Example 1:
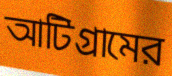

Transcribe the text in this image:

আটিগ্রামের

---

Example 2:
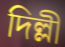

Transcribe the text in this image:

দিল্লী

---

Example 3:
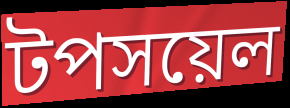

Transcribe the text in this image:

টপসয়েল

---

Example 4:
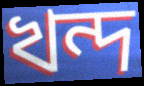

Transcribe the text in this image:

খন্দ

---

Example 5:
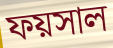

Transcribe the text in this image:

ফয়সাল